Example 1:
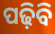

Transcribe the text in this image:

ପଢ଼ିବି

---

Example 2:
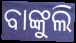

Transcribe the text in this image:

ବାଙ୍କୁଲି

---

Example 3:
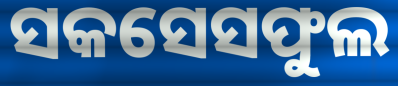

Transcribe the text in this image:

ସକସେସଫୁଲ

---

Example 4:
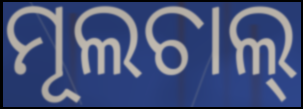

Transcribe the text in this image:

ମୂଲଚାଲ୍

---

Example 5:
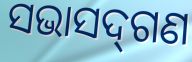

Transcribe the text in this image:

ସଭାସଦ୍‍ଗଣ